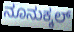
ನೂನುಕ್ಕಲ್